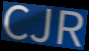
CJR